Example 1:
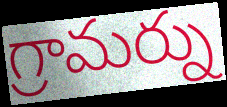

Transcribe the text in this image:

గ్రామర్ను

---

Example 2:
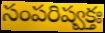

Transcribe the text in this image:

సంపరిష్వక్తః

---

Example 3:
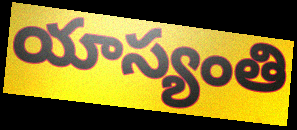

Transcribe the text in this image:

యాస్యంతి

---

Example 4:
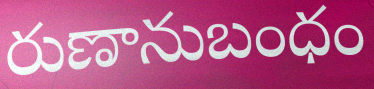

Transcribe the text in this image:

రుణానుబంధం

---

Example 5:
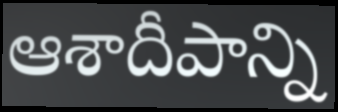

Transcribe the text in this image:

ఆశాదీపాన్ని